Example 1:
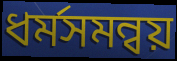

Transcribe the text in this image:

ধর্মসমন্বয়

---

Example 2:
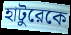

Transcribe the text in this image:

হাটুরেকে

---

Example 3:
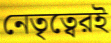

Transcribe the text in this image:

নেতৃত্বেরই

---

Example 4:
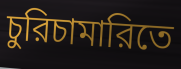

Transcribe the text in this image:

চুরিচামারিতে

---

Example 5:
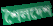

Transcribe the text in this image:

শৈলদেশ